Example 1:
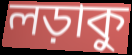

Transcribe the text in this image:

লড়াকু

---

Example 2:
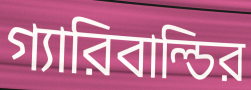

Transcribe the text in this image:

গ্যারিবাল্ডির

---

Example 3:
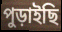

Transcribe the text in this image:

পুড়াইছি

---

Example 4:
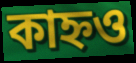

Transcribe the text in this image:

কাহ্নও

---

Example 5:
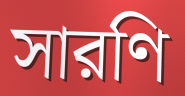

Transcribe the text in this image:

সারণি